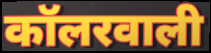
कॉलरवाली